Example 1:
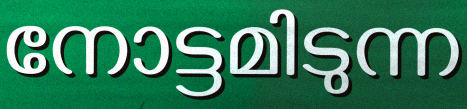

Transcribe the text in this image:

നോട്ടമിടുന്ന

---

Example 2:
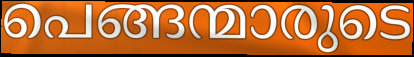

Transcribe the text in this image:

പെങ്ങന്മാരുടെ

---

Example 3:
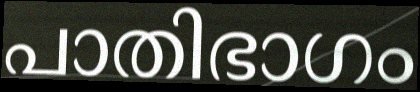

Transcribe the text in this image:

പാതിഭാഗം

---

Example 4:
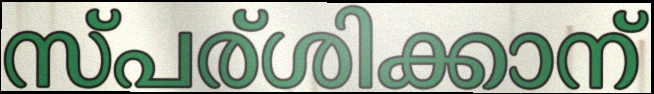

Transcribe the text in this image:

സ്പര്ശിക്കാന്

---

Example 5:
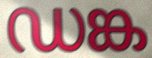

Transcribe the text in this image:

ഡങ്ക